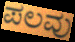
ಪಲವು